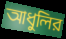
আধুলির